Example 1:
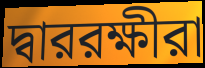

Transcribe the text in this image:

দ্বাররক্ষীরা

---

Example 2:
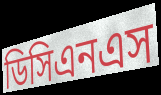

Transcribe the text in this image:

ডিসিএনএস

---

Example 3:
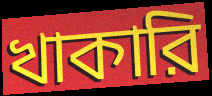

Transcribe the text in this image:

খাকারি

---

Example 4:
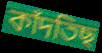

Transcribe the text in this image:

কাঁদতিছ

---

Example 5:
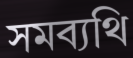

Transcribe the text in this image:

সমব্যথি